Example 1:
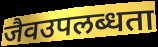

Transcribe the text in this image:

जैवउपलब्धता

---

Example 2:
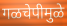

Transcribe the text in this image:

गळचेपीमुळे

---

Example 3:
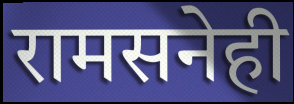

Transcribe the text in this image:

रामसनेही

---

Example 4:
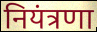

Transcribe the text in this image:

नियंत्रणा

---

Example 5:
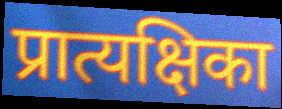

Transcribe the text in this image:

प्रात्यक्षिका